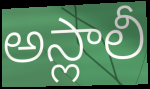
అస్లాలీ